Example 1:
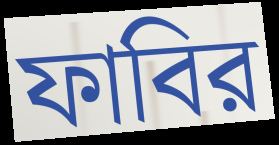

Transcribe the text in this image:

ফাবির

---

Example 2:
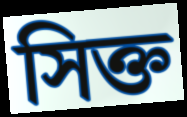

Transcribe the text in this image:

সিক্ত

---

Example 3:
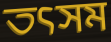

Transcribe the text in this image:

তৎসম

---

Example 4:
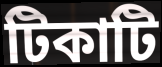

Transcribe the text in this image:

টিকাটি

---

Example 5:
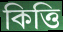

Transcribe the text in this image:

কিত্তি